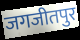
जगजीतपुर